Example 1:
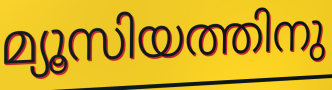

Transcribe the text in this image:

മ്യൂസിയത്തിനു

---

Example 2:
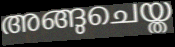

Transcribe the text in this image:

അങ്ങുചെയ്ത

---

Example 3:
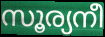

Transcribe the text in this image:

സൂര്യനീ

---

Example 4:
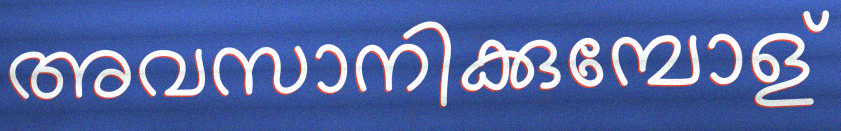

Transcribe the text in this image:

അവസാനിക്കുമ്പോള്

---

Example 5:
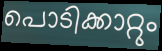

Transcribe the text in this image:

പൊടിക്കാറ്റും